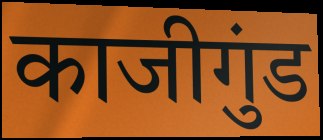
काजीगुंड